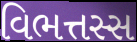
વિભત્તસ્સ